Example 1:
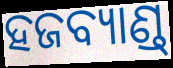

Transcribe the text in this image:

ହଜବ୍ୟାଣ୍ଡ୍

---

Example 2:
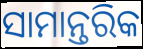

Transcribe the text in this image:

ସାମାନ୍ତରିକ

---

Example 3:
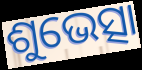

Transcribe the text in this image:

ଶୁଭେତ୍ସା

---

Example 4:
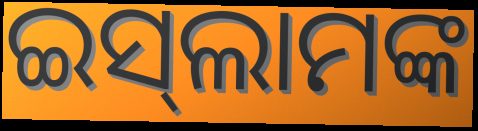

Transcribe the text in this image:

ଇସ୍‌ଲାମଙ୍କ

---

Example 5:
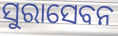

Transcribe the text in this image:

ସୁରାସେବନ